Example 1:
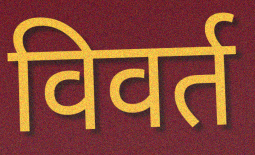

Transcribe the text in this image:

विवर्त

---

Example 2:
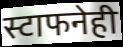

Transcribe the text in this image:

स्टाफनेही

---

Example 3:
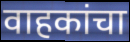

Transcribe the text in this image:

वाहकांचा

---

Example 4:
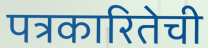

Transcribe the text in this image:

पत्रकारितेची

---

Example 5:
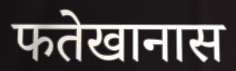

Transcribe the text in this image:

फतेखानास